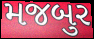
મજબુર